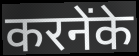
करनेंके